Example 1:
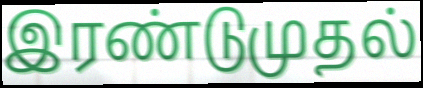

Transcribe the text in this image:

இரண்டுமுதல்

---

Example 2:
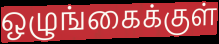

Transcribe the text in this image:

ஒழுங்கைக்குள்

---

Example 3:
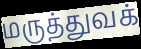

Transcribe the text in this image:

மருத்துவக்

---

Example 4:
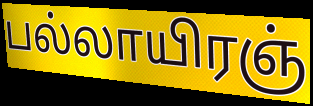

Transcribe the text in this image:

பல்லாயிரஞ்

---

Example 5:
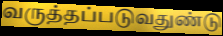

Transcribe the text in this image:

வருத்தப்படுவதுண்டு